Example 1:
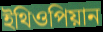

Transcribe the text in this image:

ইথিওপিয়ান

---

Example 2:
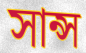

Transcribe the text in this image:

সান্স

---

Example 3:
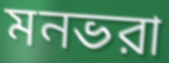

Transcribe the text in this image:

মনভরা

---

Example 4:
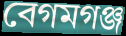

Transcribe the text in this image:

বেগমগঞ্জ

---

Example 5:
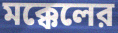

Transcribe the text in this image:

মক্কেলের